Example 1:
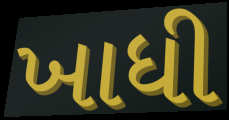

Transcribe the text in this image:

ખાધી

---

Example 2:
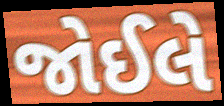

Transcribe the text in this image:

જોઈલે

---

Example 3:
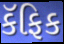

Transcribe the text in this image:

કૅફિક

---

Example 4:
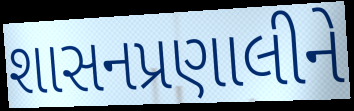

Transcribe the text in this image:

શાસનપ્રણાલીને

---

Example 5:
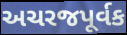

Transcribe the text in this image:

અચરજપૂર્વક